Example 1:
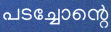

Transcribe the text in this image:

പടച്ചോന്റെ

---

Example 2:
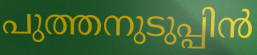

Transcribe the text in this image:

പുത്തനുടുപ്പിൻ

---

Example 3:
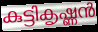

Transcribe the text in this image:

കുട്ടികൃഷ്ണൻ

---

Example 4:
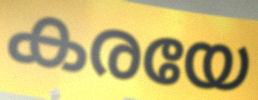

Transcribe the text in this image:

കരയേ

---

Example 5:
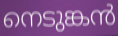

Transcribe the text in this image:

നെടുങ്കൻ